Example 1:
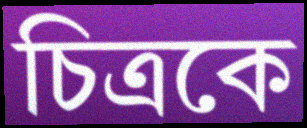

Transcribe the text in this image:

চিত্রকে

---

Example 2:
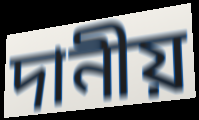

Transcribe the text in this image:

দানীয়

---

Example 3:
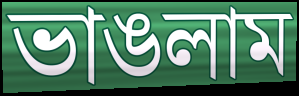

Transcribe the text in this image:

ভাঙলাম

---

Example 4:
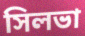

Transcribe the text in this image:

সিলভা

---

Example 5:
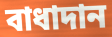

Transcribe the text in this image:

বাধাদান